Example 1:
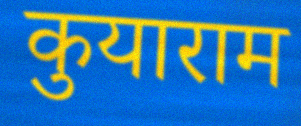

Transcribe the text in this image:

कुयाराम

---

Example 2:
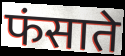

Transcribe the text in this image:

फंसाते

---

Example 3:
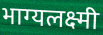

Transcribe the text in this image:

भाग्यलक्ष्मी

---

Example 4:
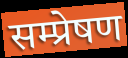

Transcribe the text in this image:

सम्प्रेषण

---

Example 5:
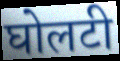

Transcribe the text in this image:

घोलटी